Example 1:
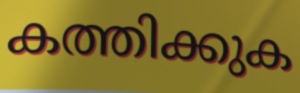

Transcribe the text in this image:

കത്തിക്കുക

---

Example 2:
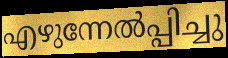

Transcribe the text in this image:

എഴുന്നേൽപ്പിച്ചു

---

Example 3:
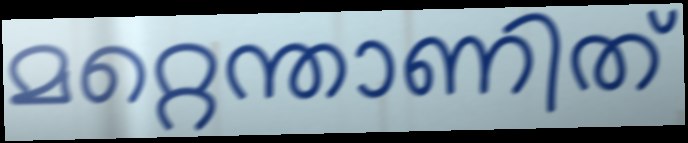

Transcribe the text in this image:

മറ്റെന്താണിത്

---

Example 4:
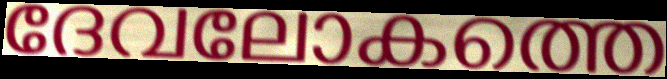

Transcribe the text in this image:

ദേവലോകത്തെ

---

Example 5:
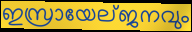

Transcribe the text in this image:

ഇസ്രായേല്ജനവും